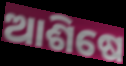
ଆଶିଷେ